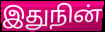
இதுநின்